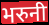
भरुनी